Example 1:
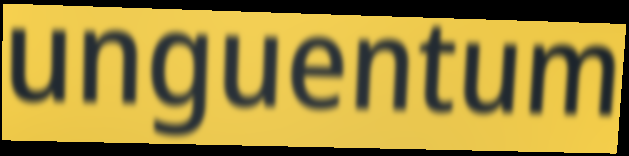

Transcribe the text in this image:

unguentum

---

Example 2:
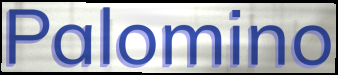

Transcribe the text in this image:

Palomino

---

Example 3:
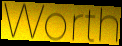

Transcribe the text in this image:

Worth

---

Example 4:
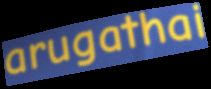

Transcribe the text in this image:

arugathai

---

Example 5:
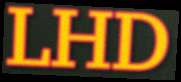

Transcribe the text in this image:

LHD